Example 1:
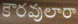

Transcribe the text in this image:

కౌరవులారా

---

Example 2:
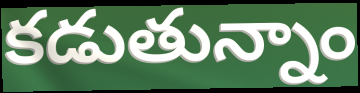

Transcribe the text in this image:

కడుతున్నాం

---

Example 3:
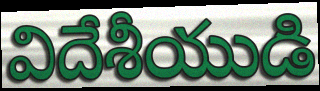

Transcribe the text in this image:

విదేశీయుడి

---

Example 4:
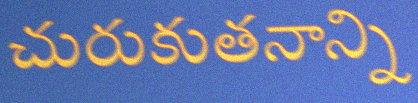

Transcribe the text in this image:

చురుకుతనాన్ని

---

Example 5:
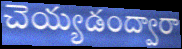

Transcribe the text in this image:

చెయ్యడంద్వారా